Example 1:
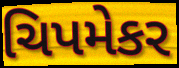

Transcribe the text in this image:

ચિપમેકર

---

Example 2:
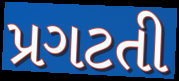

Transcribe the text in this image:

પ્રગટતી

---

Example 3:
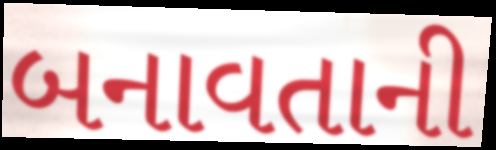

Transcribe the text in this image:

બનાવતાની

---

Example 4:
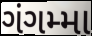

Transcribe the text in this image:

ગંગમ્મા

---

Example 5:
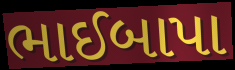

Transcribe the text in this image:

ભાઈબાપા